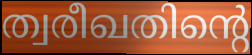
ത്വരീഖതിന്റെ